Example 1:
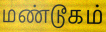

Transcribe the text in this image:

மண்டூகம்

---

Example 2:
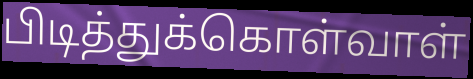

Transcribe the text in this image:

பிடித்துக்கொள்வாள்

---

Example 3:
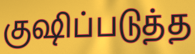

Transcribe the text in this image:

குஷிப்படுத்த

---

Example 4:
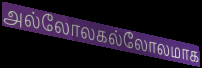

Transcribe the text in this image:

அல்லோலகல்லோலமாக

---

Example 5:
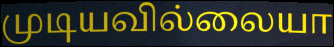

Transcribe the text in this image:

முடியவில்லையா